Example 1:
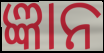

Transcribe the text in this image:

ଜ୍ଞାନ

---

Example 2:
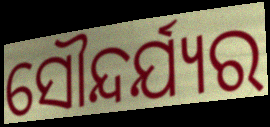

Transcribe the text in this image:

ସୌନ୍ଦର୍ଯ୍ୟର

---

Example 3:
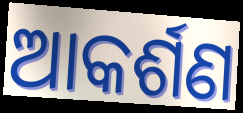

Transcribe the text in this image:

ଆକର୍ଶଣ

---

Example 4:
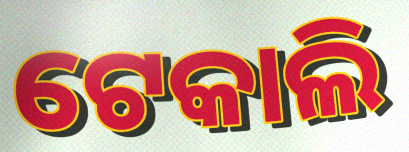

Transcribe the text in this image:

ଟେକାଲି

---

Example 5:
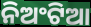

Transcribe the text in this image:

ନିଅଂଟିଆ